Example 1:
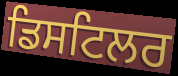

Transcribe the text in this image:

ਡਿਸਟਿਲਰ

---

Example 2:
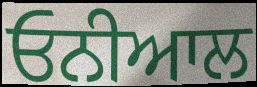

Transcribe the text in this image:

ਓਨੀਆਲ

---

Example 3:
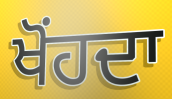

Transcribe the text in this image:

ਖੋਂਹਦਾ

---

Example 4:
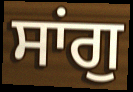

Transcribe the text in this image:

ਸਾਂਗੁ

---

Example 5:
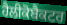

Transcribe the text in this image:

ਹੈਲੀਕੋਬੈਕਟਰ